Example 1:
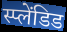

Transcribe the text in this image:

स्प्लेंडिड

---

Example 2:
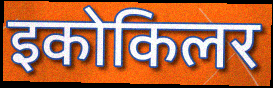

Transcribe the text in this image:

इकोकिलर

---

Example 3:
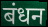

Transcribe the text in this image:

बंधन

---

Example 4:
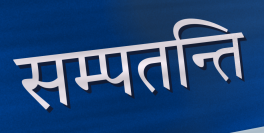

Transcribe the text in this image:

सम्पतन्ति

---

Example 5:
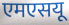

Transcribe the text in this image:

एमएसयू